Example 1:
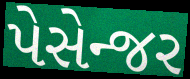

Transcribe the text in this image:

પેસેન્જર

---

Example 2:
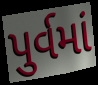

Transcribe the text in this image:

પુર્વમાં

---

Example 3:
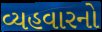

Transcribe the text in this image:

વ્યહવારનો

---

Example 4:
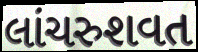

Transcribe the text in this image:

લાંચરુશવત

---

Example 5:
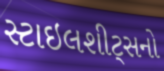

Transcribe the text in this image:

સ્ટાઇલશીટ્સનો